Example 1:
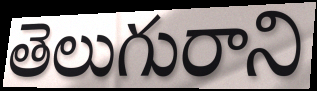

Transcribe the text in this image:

తెలుగురాని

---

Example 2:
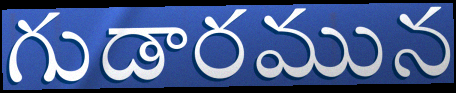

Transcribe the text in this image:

గుడారమున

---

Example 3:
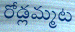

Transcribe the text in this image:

రోడ్లమ్మట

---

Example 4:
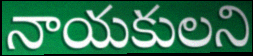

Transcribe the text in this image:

నాయకులని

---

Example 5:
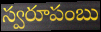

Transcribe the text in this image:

స్వరూపంబు